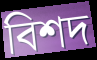
বিশদ